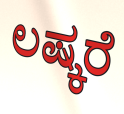
ಲಷ್ಕರೆ